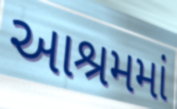
આશ્રમમાં